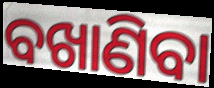
ବଖାଣିବା